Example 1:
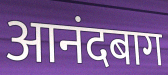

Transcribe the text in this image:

आनंदबाग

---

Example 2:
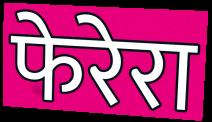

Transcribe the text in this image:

फेरेरा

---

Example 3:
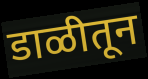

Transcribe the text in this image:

डाळीतून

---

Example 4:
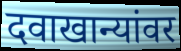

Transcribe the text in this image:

दवाखान्यांवर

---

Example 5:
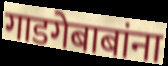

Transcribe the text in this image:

गाडगेबाबांना